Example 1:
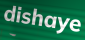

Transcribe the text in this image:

dishaye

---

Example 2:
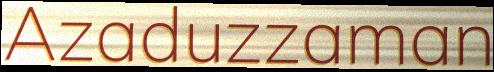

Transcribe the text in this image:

Azaduzzaman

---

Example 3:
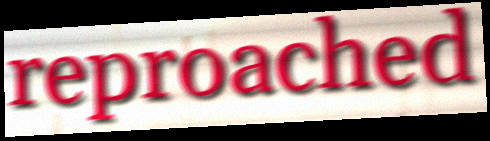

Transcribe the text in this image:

reproached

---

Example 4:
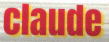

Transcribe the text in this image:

claude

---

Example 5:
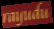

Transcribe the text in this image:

rayudu